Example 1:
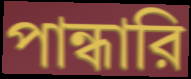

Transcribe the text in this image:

পান্ধারি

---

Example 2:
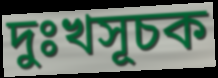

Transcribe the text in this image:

দুঃখসূচক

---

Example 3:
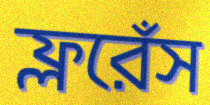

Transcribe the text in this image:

ফ্লরেঁস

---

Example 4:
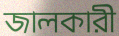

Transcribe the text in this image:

জালকারী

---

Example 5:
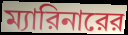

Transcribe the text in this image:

ম্যারিনারের